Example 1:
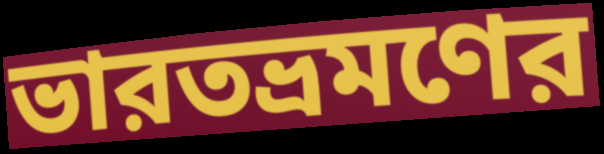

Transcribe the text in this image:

ভারতভ্রমণের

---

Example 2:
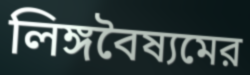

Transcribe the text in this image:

লিঙ্গবৈষ্যমের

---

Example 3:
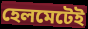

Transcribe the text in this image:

হেলমেটেই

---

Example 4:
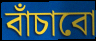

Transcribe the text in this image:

বাঁচাবো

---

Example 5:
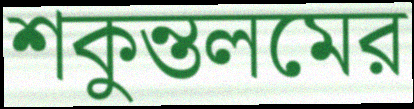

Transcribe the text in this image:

শকুন্তলমের